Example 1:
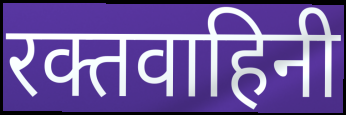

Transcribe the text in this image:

रक्तवाहिनी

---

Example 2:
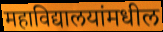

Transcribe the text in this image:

महाविद्यालयांमधील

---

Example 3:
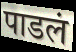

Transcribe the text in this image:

पाडलं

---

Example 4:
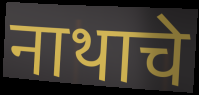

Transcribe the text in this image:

नाथाचे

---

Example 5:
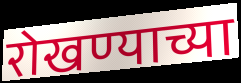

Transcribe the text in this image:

रोखण्याच्या